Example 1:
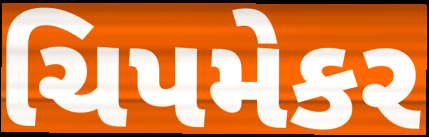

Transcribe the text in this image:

ચિપમેકર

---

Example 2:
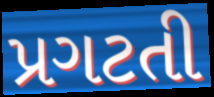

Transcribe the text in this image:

પ્રગટતી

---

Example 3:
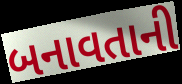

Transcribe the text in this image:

બનાવતાની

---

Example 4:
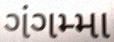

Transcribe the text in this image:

ગંગમ્મા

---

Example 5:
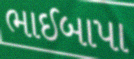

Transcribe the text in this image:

ભાઈબાપા